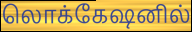
லொக்கேஷனில்